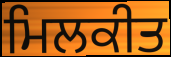
ਮਿਲਕੀਤ